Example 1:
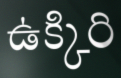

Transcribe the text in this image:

ఉక్కిరి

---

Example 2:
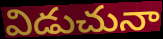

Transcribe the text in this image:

విడుచునా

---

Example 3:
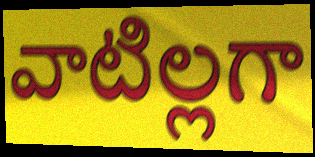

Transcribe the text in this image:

వాటిల్లగా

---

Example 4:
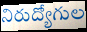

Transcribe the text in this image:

నిరుద్యోగుల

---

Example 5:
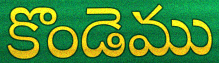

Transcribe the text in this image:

కొండెము